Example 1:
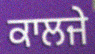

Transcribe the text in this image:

ਕਾਲਜੇ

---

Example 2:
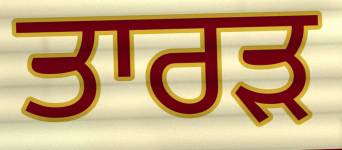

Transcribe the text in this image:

ਤਾਰੜ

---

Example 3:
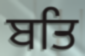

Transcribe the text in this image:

ਬਤਿ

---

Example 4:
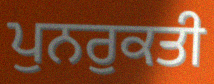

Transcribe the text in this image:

ਪੁਨਰੁਕਤੀ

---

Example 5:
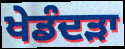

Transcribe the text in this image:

ਖੇਡੰਦੜਾ